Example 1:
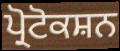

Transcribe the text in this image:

ਪ੍ਰੋਟੋਕਸ਼ਨ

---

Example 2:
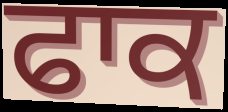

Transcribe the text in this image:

ਫਾਕ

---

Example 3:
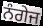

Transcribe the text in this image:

ਨੰਗੇਜ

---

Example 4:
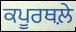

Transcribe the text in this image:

ਕਪੂਰਥਲ਼ੇ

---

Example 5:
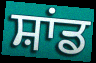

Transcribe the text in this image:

ਸ਼ਾਂਡ